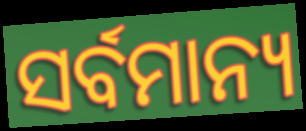
ସର୍ବମାନ୍ୟ